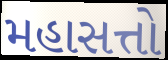
મહાસત્તો